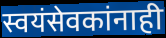
स्वयंसेवकांनाही